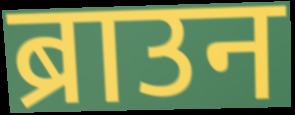
ब्राउन